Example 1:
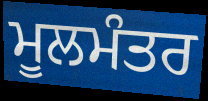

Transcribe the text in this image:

ਮੂਲਮੰਤਰ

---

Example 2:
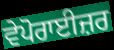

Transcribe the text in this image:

ਵੇਪੋਰਾਈਜ਼ਰ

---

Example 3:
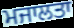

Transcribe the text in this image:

ਮਜਾਲਤਾ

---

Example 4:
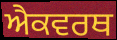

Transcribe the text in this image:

ਐਕਵਰਥ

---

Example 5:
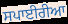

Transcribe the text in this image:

ਸਪਾਈਰੀਆ